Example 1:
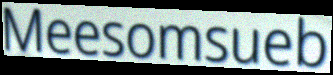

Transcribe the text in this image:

Meesomsueb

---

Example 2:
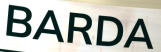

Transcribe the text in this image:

BARDA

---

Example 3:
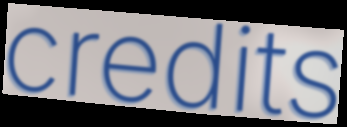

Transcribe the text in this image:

credits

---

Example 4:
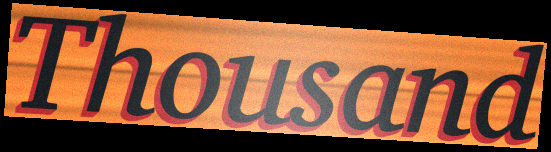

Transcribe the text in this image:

Thousand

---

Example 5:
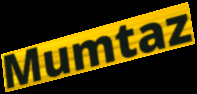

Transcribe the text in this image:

Mumtaz